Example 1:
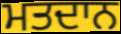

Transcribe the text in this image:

ਮਤਦਾਨ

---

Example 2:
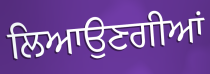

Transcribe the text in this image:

ਲਿਆਉਣਗੀਆਂ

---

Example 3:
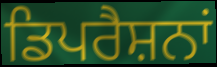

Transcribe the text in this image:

ਡਿਪਰੈਸ਼ਨਾਂ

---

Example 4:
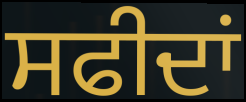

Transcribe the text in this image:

ਸਫੀਦਾਂ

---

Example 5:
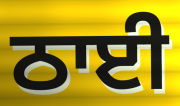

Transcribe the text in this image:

ਠਾਈ